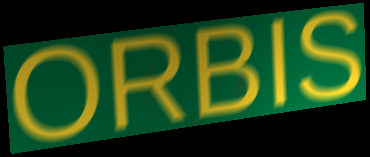
ORBIS